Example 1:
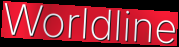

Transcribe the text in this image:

Worldline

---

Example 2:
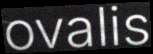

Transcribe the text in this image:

ovalis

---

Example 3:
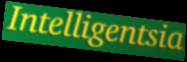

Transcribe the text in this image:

Intelligentsia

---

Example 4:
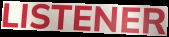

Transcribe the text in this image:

LISTENER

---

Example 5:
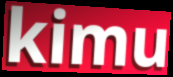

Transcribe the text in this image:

kimu